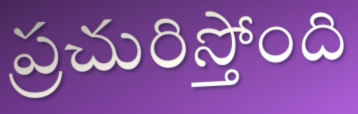
ప్రచురిస్తోంది